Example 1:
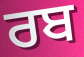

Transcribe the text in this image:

ਰਬ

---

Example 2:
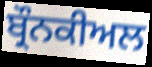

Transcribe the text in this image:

ਬ੍ਰੌਨਕੀਅਲ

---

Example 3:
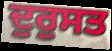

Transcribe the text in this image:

ਦੁਰੁਸਤ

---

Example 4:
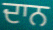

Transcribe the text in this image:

ਦਾਨ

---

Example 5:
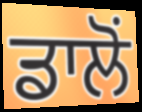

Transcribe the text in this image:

ਡਾਲੋਂ